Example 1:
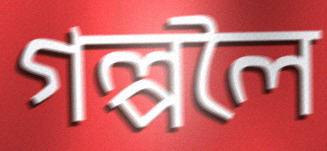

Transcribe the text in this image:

গল্পলৈ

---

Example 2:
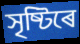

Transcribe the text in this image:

সৃষ্টিৰে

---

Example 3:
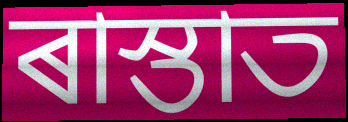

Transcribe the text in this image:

ৰাস্তাত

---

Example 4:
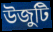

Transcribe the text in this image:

উজুটি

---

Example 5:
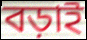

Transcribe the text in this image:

বড়াই